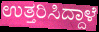
ಉತ್ತರಿಸಿದ್ದಾಳೆ